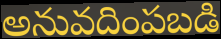
అనువదింపబడి